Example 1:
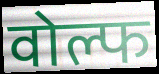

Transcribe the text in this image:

वोल्फ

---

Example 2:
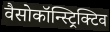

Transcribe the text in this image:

वैसोकॉन्स्ट्रिक्टिव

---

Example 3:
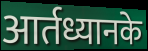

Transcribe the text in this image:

आर्तध्यानके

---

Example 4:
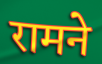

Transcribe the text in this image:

रामने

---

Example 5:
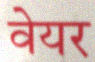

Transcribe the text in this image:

वेयर